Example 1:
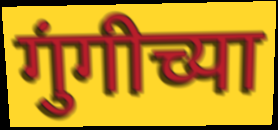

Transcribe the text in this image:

गुंगीच्या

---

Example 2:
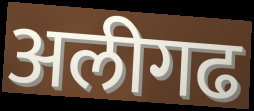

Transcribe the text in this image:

अलीगढ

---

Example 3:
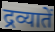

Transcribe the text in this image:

द्रव्यातें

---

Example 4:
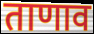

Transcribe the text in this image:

ताणाव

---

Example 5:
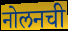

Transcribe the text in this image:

नोलनची